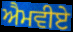
ਐਮਵੀਏ